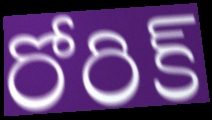
రోరిక్